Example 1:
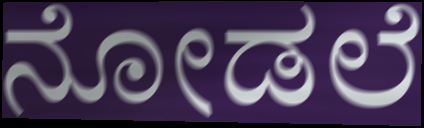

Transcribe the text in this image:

ನೋಡಲೆ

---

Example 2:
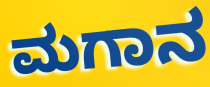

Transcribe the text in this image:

ಮಗಾನ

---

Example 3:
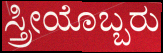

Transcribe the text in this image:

ಸ್ತ್ರೀಯೊಬ್ಬರು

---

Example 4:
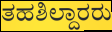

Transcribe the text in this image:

ತಹಶಿಲ್ದಾರರು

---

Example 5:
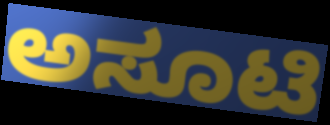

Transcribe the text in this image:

ಅಸೂಟಿ